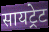
सायट्रेट